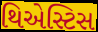
થિએસ્ટિસ